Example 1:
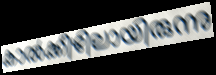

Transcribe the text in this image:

കാൽക്കീഴിലായിരുന്നു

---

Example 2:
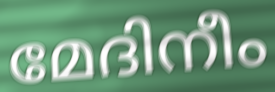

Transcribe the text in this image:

മേദിനീം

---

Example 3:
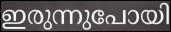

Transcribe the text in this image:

ഇരുന്നുപോയി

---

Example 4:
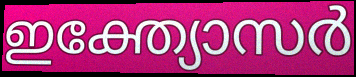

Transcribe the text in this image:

ഇക്ത്യോസർ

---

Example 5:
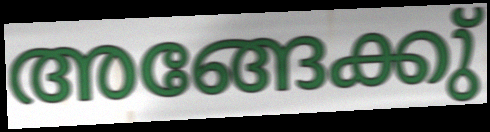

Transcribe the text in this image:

അങ്ങേക്കു്